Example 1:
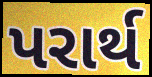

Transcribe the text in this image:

પરાર્થ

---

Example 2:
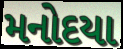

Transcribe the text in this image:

મનોદયા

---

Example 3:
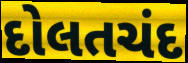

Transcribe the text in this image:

દોલતચંદ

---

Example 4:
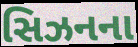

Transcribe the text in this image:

સિઝનના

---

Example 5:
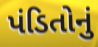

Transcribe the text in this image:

પંડિતોનું